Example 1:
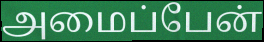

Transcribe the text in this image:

அமைப்பேன்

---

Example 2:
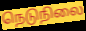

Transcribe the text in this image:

நெடுநிலை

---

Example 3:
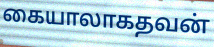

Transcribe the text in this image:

கையாலாகதவன்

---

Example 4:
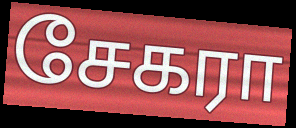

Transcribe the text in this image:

சேகரா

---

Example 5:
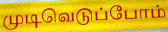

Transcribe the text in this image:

முடிவெடுப்போம்